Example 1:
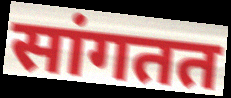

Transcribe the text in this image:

सांगतत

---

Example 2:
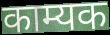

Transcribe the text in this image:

काम्यक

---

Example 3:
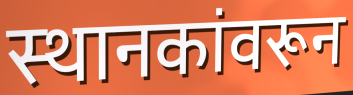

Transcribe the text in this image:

स्थानकांवरून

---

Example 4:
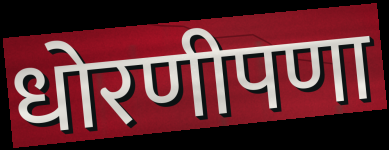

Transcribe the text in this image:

धोरणीपणा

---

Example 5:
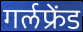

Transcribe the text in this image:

गर्लफ्रेंड